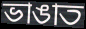
ভাঙাত